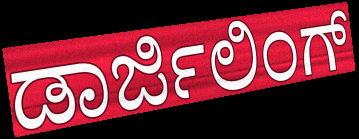
ಡಾರ್ಜಿಲಿಂಗ್